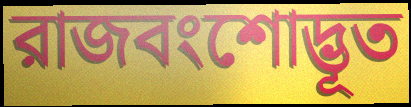
রাজবংশোদ্ভূত